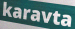
karavta